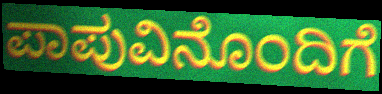
ಪಾಪುವಿನೊಂದಿಗೆ